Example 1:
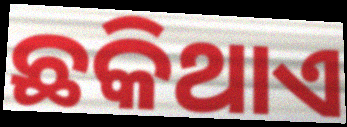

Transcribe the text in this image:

ଛକିଥାଏ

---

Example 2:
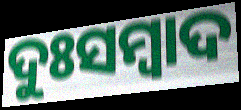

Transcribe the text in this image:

ଦୁଃସମ୍ବାଦ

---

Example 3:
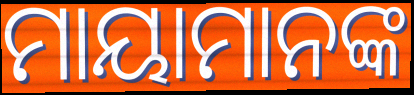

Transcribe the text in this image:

ମାୟାମାନଙ୍କ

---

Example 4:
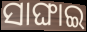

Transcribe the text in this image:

ସାଙ୍ଘାଇ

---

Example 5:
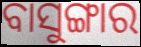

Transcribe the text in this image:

ବାସୁଙ୍ଗାର